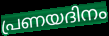
പ്രണയദിനം